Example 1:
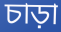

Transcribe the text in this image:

চাড়া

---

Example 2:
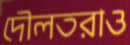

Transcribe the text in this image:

দৌলতরাও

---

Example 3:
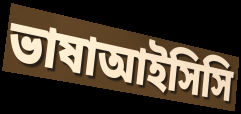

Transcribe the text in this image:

ভাষাআইসিসি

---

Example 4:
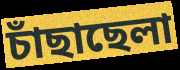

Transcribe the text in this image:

চাঁছাছেলা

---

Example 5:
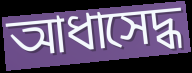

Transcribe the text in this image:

আধাসেদ্ধ